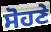
ਸੋਹਣੇ